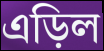
এড়িল